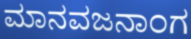
ಮಾನವಜನಾಂಗ